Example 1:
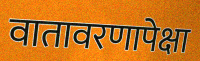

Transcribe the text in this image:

वातावरणापेक्षा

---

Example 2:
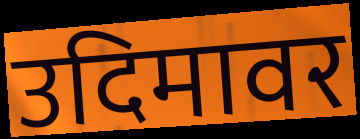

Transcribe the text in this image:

उदिमावर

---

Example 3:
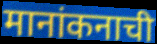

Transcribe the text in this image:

मानांकनाची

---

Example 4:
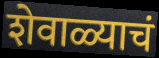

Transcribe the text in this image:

शेवाळ्याचं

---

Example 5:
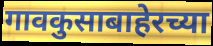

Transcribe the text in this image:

गावकुसाबाहेरच्या